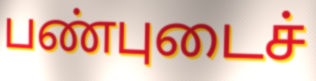
பண்புடைச்